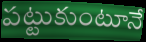
పట్టుకుంటూనే